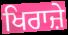
ਖਿਰਾਜ਼ੇ